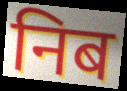
निब